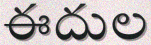
ఈదుల